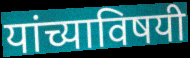
यांच्याविषयी